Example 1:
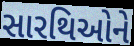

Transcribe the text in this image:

સારથિઓને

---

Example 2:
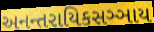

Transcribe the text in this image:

અનન્તરાયિકસઞ્ઞાય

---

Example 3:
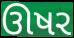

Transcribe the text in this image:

ઊષર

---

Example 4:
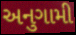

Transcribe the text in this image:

અનુગામી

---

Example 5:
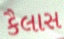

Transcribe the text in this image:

કૈલાસ